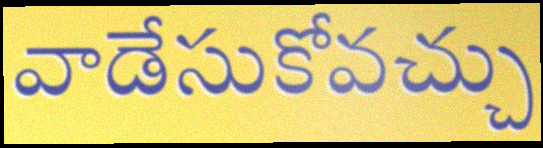
వాడేసుకోవచ్చు